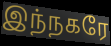
இந்நகரே